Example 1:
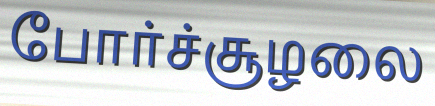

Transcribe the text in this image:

போர்ச்சூழலை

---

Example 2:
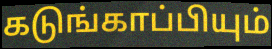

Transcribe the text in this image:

கடுங்காப்பியும்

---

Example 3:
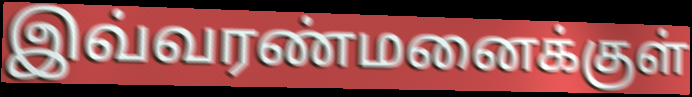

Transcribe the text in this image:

இவ்வரண்மனைக்குள்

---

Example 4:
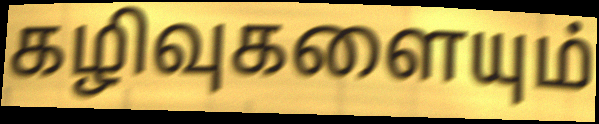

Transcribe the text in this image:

கழிவுகளையும்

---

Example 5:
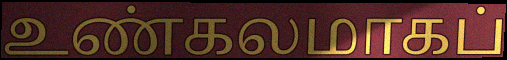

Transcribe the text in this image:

உண்கலமாகப்